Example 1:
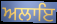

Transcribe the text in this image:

ਅਲਾਇ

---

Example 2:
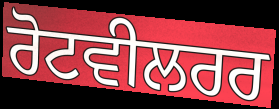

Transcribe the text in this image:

ਰੋਟਵੀਲਰਰ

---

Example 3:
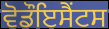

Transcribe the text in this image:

ਵੋਡੌਇਸੈਂਟਸ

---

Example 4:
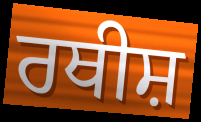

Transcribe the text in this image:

ਰਥੀਸ਼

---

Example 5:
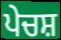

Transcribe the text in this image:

ਪੇਚਸ਼